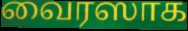
வைரஸாக